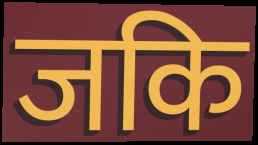
जकि